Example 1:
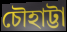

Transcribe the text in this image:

চৌহাট্টা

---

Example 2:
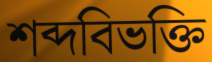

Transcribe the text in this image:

শব্দবিভক্তি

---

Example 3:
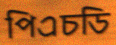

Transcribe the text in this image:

পিএচডি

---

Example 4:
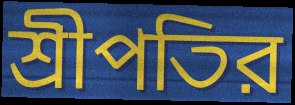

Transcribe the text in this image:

শ্রীপতির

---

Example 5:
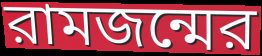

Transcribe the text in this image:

রামজন্মের